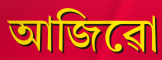
আজিৱো